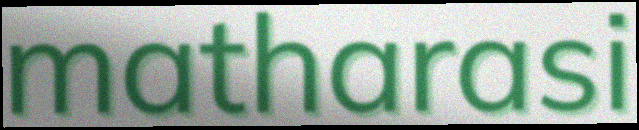
matharasi